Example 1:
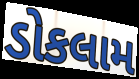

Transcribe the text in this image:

ડોકલામ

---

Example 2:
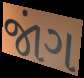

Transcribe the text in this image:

જાંગ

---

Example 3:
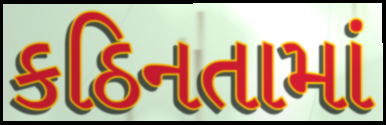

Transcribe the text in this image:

કઠિનતામાં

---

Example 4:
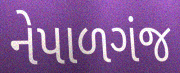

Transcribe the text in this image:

નેપાળગંજ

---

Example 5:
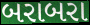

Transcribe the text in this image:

બરાબરા